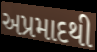
અપ્રમાદથી